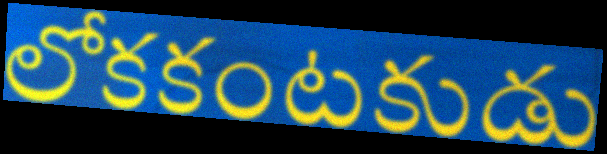
లోకకంటకుడు